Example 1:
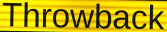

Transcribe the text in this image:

Throwback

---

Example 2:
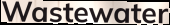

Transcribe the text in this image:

Wastewater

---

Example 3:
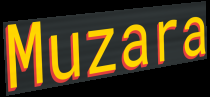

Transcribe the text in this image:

Muzara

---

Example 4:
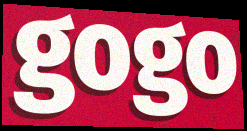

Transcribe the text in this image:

gogo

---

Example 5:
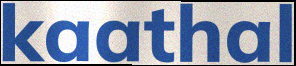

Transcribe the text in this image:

kaathal